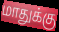
மாதுக்கு